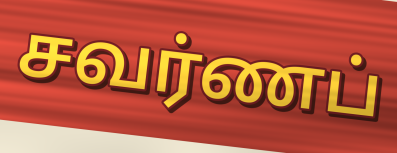
சவர்ணப்